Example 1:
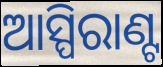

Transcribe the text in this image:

ଆସ୍ପିରାଣ୍ଟ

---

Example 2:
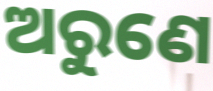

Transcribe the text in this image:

ଅରୁଣେ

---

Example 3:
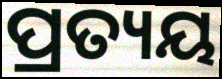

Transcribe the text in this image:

ପ୍ରତ୍ୟୟ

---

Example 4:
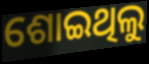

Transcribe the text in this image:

ଶୋଇଥିଲୁ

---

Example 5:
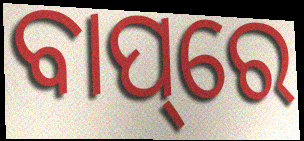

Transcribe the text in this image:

ବାପ୍‌ରେ